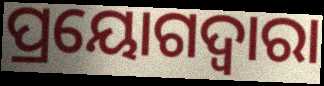
ପ୍ରୟୋଗଦ୍ୱାରା